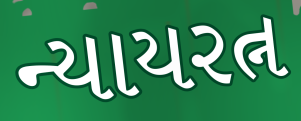
ન્યાયરત્ન